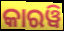
କାରୱି